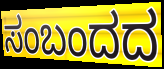
ಸಂಬಂದದ